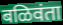
बळिवंता